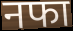
नफा